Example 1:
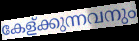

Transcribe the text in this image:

കേള്ക്കുന്നവനും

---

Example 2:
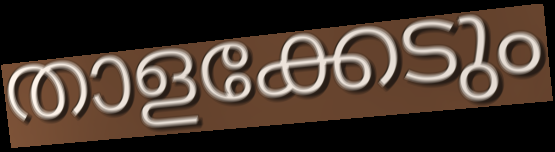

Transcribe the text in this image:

താളക്കേടും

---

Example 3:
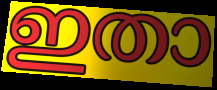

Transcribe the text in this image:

ഇതാ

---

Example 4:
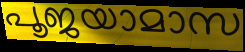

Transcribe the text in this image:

പൂജയാമാസ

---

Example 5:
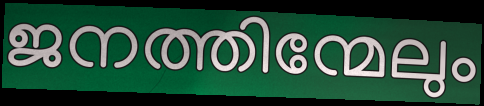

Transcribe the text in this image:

ജനത്തിന്മേലും